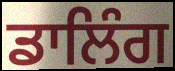
ਡਾਲਿੰਗ